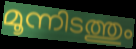
മൂന്നിടത്തും